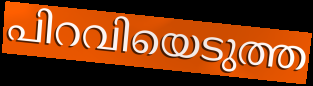
പിറവിയെടുത്ത